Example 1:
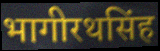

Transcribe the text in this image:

भागीरथसिंह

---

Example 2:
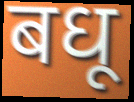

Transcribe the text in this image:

बधू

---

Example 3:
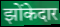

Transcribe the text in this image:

झोंकेदार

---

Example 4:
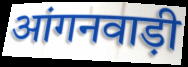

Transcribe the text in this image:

आंगनवाड़ी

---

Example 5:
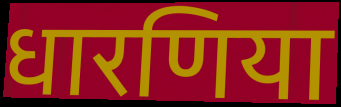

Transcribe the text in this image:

धारणिया